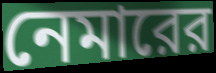
নেমারের